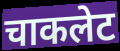
चाकलेट